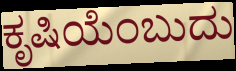
ಕೃಷಿಯೆಂಬುದು